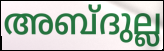
അബ്ദുല്ല